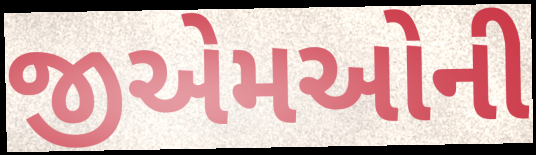
જીએમઓની